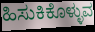
ಹಿಸುಕಿಕೊಳ್ಳುವ